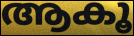
ആകൂ